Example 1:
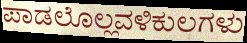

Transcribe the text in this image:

ಪಾಡಲೊಲ್ಲವಳಿಕುಲಗಳು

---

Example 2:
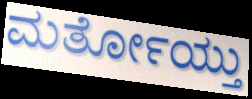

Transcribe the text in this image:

ಮರ್ತೋಯ್ತು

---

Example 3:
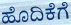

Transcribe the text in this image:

ಹೊದಿಕೆಗೆ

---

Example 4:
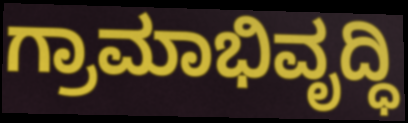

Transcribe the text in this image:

ಗ್ರಾಮಾಭಿವೃದ್ಧಿ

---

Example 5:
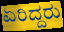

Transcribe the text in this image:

ಏರಿದ್ದರು